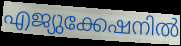
എജ്യുക്കേഷനിൽ